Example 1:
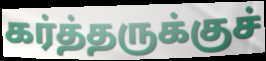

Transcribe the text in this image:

கர்த்தருக்குச்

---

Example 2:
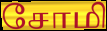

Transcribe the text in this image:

சோமி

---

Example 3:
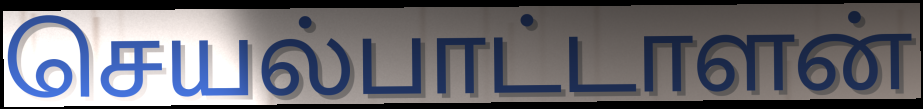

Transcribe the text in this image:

செயல்பாட்டாளன்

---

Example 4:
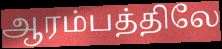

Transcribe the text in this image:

ஆரம்பத்திலே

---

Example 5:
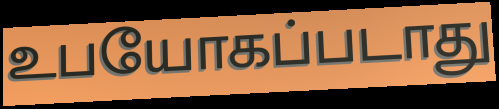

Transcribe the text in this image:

உபயோகப்படாது